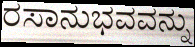
ರಸಾನುಭವವನ್ನು